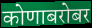
कोणाबरोबर